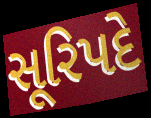
સૂરિપદે